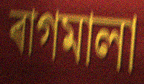
ৰাগমালা